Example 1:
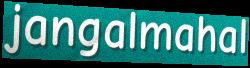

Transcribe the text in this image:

jangalmahal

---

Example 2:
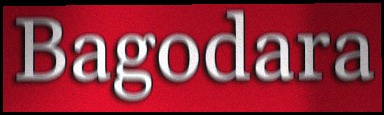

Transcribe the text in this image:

Bagodara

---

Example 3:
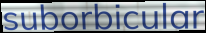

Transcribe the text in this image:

suborbicular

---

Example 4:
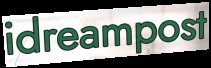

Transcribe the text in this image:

idreampost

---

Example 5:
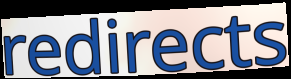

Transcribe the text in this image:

redirects